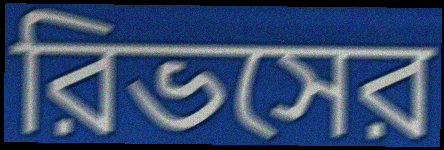
রিভসের